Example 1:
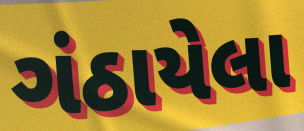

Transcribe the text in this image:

ગંઠાયેલા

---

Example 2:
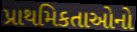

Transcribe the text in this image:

પ્રાથમિકતાઓનો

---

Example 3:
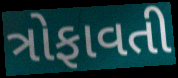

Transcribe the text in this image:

ત્રોફાવતી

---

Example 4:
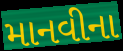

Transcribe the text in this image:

માનવીના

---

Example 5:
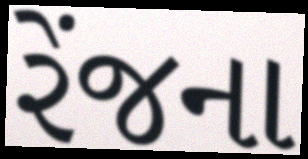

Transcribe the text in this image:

રેંજના